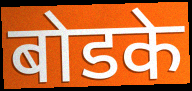
बोडके